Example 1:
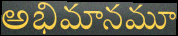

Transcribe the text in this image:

అభిమానమూ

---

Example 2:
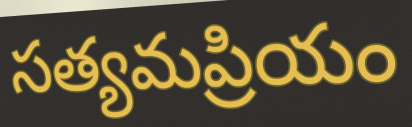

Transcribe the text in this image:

సత్యమప్రియం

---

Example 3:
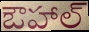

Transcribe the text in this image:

ఔహాల్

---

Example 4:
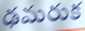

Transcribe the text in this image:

ఢమరుక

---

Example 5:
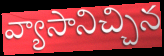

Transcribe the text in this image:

వ్యాసానిచ్చిన